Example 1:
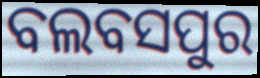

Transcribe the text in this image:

ବଲବସପୁର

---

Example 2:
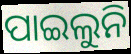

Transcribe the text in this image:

ପାଇଲୁନି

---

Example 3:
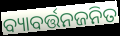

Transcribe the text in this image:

ବ୍ୟାବର୍ତ୍ତନଜନିତ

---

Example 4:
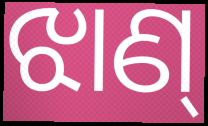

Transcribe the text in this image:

ଝାଣ୍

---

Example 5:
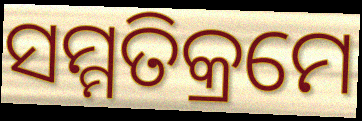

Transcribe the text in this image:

ସମ୍ମତିକ୍ରମେ